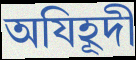
অযিহূদী